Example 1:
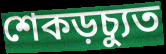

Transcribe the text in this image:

শেকড়চ্যুত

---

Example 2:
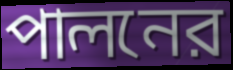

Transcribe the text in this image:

পালনের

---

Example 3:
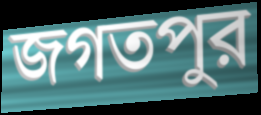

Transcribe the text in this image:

জগতপুর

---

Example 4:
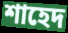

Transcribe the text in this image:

শাহেদ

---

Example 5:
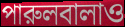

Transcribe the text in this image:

পারুলবালাও